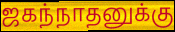
ஜகந்நாதனுக்கு